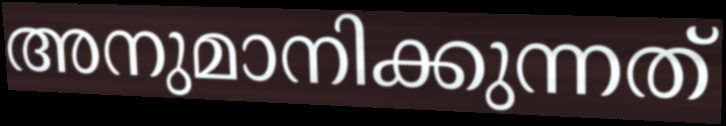
അനുമാനിക്കുന്നത്